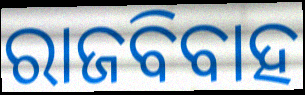
ରାଜବିବାହ